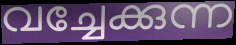
വച്ചേക്കുന്ന